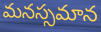
మనస్సమాన